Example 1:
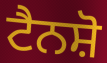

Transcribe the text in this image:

ਟੈਨਸ਼ੋ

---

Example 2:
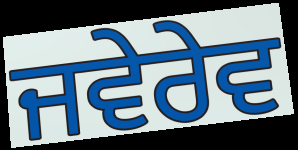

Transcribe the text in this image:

ਜਵੇਰੇਵ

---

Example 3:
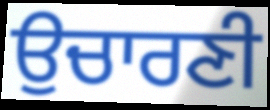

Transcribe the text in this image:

ਉਚਾਰਣੀ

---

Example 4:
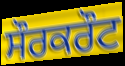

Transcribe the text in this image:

ਸੌਰਕਰੌਟ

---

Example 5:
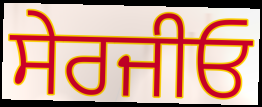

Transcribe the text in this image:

ਸੇਰਜੀਓ